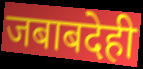
जबाबदेही